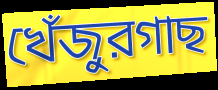
খেঁজুরগাছ